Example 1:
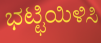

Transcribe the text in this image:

ಭಟ್ಟಿಯಿಳಿಸಿ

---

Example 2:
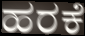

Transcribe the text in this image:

ಹರಕೆ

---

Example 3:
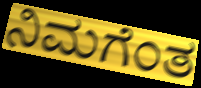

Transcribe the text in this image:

ನಿಮಗೆಂತ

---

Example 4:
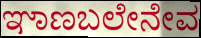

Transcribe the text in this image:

ಞಾಣಬಲೇನೇವ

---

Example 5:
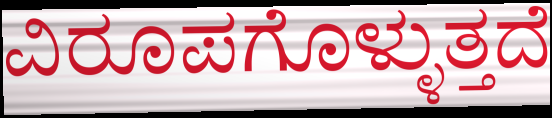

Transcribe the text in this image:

ವಿರೂಪಗೊಳ್ಳುತ್ತದೆ